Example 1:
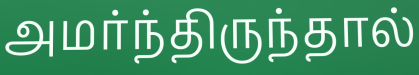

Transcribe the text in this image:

அமர்ந்திருந்தால்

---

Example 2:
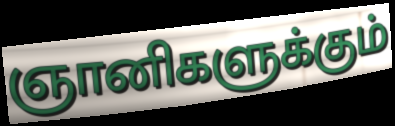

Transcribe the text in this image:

ஞானிகளுக்கும்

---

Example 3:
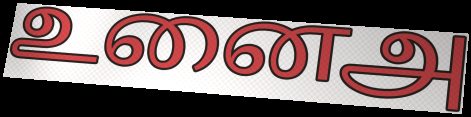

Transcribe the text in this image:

உனைஅ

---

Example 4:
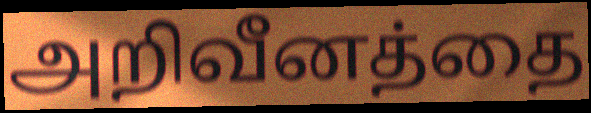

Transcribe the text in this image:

அறிவீனத்தை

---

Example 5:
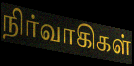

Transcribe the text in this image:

நிர்வாகிகள்